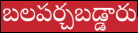
బలపర్చబడ్డారు